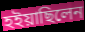
হইয়াছিলেন